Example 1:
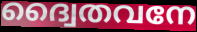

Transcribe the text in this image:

ദ്വൈതവനേ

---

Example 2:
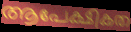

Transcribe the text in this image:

ആപേക്ഷികത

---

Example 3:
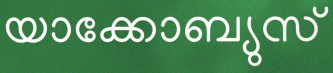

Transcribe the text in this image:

യാക്കോബ്യുസ്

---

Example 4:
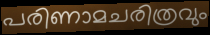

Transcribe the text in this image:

പരിണാമചരിത്രവും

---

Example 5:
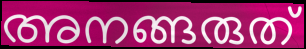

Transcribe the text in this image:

അനങ്ങരുത്